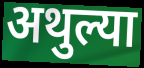
अथुल्या